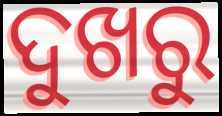
ଦୁଖରୁ